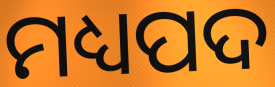
ମଧ୍ୟପଦ